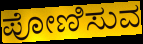
ಪೋಣಿಸುವ